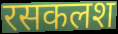
रसकलश